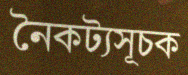
নৈকট্যসূচক